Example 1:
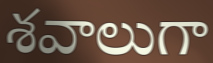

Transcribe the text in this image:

శవాలుగా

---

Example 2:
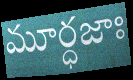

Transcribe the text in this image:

మూర్ధజాః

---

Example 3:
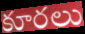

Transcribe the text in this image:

కూరలు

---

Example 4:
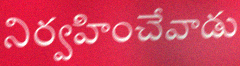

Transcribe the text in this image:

నిర్వహించేవాడు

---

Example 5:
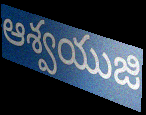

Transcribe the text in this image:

ఆశ్వయుజి